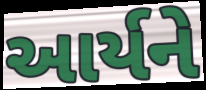
આર્યને